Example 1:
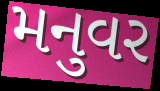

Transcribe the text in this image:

મનુવર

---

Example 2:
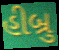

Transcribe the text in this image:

હીબ્રુ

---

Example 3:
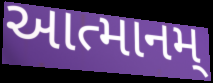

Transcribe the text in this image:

આત્માનમ્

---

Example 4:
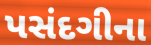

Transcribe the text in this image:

પસંદગીના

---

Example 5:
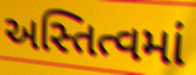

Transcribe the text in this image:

અસ્તિત્વમાં